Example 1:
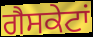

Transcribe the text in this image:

ਗੈਸਕੇਟਾਂ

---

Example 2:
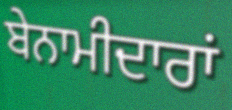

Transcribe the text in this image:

ਬੇਨਾਮੀਦਾਰਾਂ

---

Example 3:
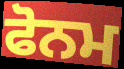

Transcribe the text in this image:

ਫੋਨਮ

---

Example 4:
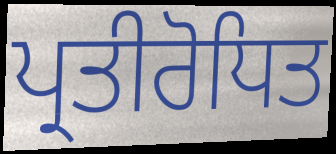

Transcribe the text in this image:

ਪ੍ਰਤੀਰੋਧਿਤ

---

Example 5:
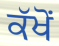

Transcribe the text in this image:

ਕੱਖੋਂ